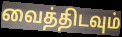
வைத்திடவும்